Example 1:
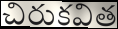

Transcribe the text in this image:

చిరుకవిత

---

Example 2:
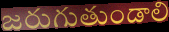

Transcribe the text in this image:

జరుగుతుండాలి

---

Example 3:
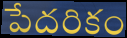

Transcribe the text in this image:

పేదరికం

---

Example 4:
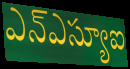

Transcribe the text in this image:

ఎన్ఎస్యూఐ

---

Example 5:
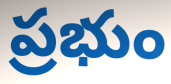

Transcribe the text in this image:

ప్రభుం